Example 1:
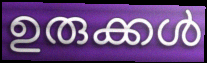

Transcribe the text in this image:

ഉരുക്കൾ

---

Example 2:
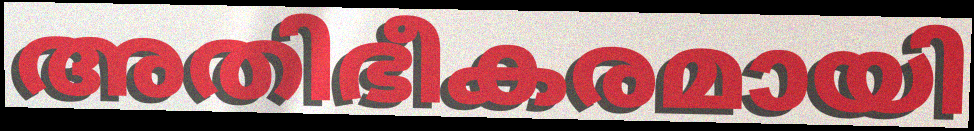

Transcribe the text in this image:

അതിഭീകരമായി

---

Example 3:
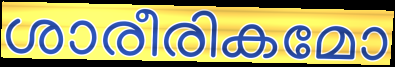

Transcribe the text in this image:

ശാരീരികമോ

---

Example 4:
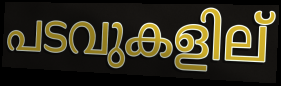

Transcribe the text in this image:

പടവുകളില്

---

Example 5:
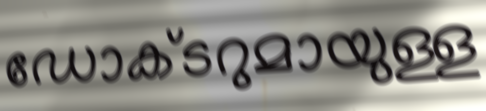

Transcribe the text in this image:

ഡോക്ടറുമായുള്ള